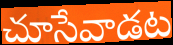
చూసేవాడట